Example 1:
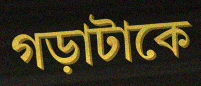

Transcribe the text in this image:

গড়াটাকে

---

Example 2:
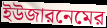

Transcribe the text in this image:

ইউজারনেমের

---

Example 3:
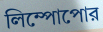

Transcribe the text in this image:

লিম্পোপোর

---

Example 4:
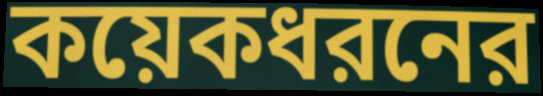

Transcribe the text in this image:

কয়েকধরনের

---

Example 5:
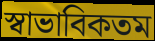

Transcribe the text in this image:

স্বাভাবিকতম